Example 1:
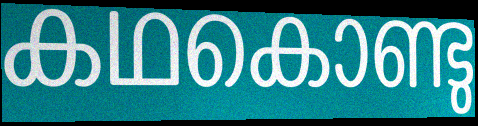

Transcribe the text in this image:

കഥകൊണ്ടു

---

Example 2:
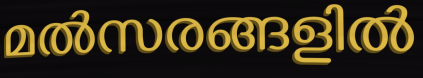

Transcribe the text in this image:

മൽസരങ്ങളിൽ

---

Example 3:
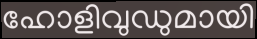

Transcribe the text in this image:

ഹോളിവുഡുമായി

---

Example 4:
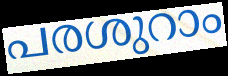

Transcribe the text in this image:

പരശുറാം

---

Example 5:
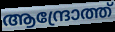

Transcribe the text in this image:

ആന്ദ്രോത്ത്